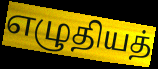
எழுதியத்